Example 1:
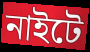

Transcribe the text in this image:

নাইটে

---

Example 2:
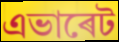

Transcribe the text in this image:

এভাৰেট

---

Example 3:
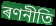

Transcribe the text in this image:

ৰণনীতি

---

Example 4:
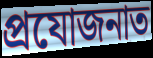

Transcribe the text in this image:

প্ৰযোজনাত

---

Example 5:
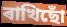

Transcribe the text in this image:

ৰাখিছোঁ